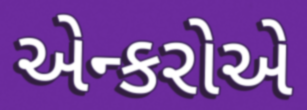
એન્કરોએ